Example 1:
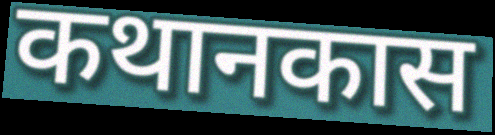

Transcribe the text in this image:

कथानकास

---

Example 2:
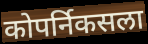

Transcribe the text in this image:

कोपर्निकसला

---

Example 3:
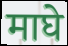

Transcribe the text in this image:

माघे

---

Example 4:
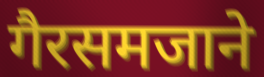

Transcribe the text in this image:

गैरसमजाने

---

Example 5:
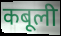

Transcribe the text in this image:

कबूली